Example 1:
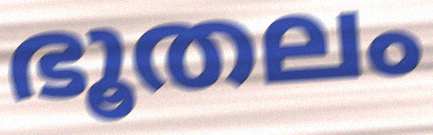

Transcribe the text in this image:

ഭൂതലം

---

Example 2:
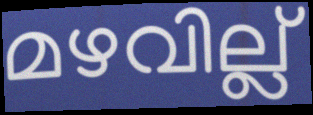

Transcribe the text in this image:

മഴവില്ല്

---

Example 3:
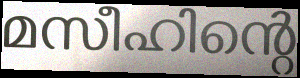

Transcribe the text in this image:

മസീഹിന്റെ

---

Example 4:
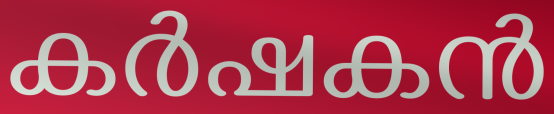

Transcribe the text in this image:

കർഷകൻ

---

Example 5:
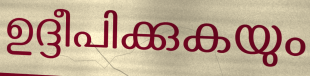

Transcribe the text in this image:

ഉദ്ദീപിക്കുകയും